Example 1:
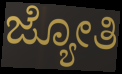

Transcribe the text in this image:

ಜ್ಯೋತಿ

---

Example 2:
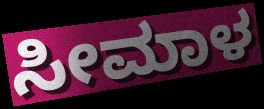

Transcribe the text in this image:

ಸೀಮಾಳ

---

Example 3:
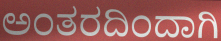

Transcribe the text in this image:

ಅಂತರದಿಂದಾಗಿ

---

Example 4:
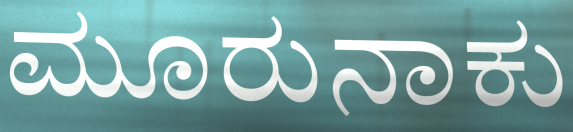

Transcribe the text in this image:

ಮೂರುನಾಕು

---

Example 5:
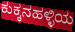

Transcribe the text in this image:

ಕುಕ್ಕನಹಳ್ಳಿಯ